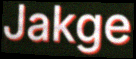
Jakge